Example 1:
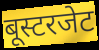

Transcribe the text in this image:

बूस्टरजेट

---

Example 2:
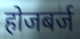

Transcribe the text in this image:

होजबर्ज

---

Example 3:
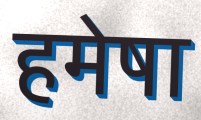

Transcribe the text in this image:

हमेषा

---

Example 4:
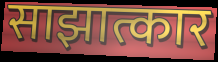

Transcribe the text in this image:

साझात्कार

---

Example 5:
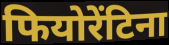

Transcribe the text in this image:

फियोरेंटिना